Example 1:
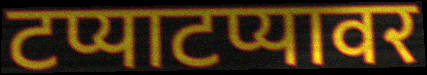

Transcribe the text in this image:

टप्याटप्यावर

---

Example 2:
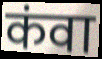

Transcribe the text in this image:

कंवा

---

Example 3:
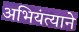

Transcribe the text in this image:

अभियंत्याने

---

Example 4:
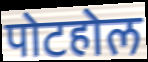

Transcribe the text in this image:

पोटहोल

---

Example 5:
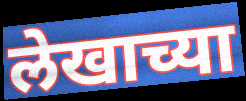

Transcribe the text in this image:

लेखाच्या